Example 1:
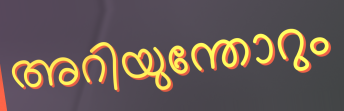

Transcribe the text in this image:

അറിയുന്തോറും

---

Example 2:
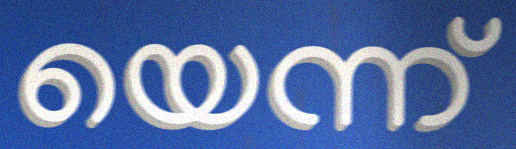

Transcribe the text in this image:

യെന്ന്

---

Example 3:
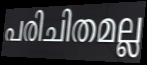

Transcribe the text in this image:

പരിചിതമല്ല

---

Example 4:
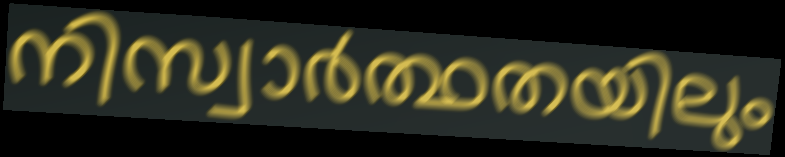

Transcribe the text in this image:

നിസ്വാർത്ഥതയിലും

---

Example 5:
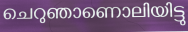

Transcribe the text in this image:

ചെറുഞാണൊലിയിട്ടു